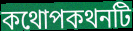
কথোপকথনটি